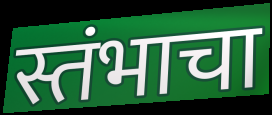
स्तंभाचा